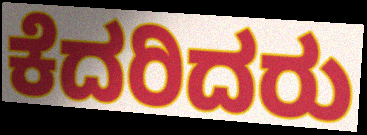
ಕೆದರಿದರು